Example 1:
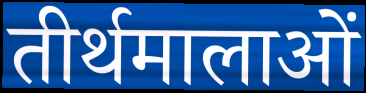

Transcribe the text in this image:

तीर्थमालाओं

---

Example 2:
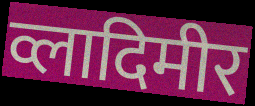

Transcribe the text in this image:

व्‍लादिमीर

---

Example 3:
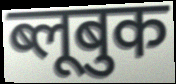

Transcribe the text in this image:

ब्लूबुक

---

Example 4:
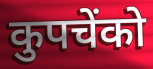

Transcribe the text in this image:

कुपचेंको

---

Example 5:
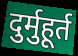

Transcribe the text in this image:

दुर्मुहूर्त